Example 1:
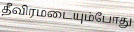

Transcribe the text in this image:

தீவிரமடையும்போது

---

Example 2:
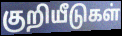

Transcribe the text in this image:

குறியீடுகள்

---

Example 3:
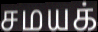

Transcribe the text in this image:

சமயக்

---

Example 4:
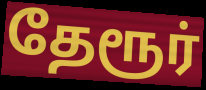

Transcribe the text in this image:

தேரூர்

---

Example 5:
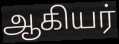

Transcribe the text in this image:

ஆகியர்